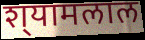
श्यामलाल